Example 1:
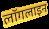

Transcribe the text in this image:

लॉगलाइन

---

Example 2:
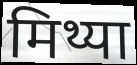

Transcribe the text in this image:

मिथ्‍या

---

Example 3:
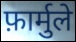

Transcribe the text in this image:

फ़ार्मुले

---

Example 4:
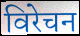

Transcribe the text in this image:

विरेचन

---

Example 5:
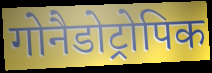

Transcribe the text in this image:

गोनैडोट्रोपिक